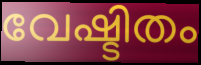
വേഷ്ടിതം